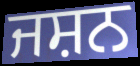
ਜਸ਼ਨ